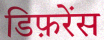
डिफ़रेंस